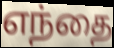
எந்தை